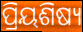
ପ୍ରିୟଶିଷ୍ୟ